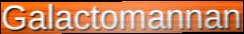
Galactomannan